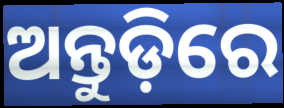
ଅନ୍ତୁଡ଼ିରେ